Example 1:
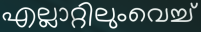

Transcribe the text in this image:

എല്ലാറ്റിലുംവെച്ച്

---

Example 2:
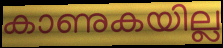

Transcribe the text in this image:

കാണുകയില്ല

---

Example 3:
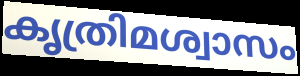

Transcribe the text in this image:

കൃത്രിമശ്വാസം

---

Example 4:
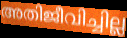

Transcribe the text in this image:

അതിജീവിച്ചില്ല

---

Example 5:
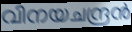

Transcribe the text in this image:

വിനയചന്ദ്രൻ